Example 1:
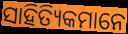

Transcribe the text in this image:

ସାହିତ୍ୟିକମାନେ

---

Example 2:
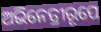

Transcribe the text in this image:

ଅଭିନେତ୍ରୀରୂପେ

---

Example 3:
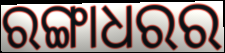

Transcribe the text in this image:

ରଙ୍ଗାଧରର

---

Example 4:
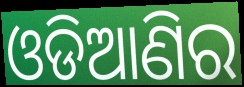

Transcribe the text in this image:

ଓଡିଆଣିର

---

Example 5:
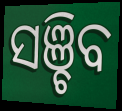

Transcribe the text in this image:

ସଞ୍ଚିବ